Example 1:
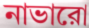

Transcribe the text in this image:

নাভারো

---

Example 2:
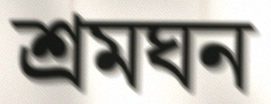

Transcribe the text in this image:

শ্রমঘন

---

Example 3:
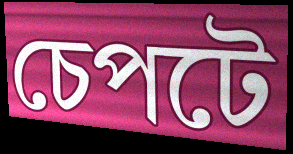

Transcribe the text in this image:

চেপটে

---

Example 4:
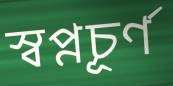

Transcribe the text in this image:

স্বপ্নচূর্ণ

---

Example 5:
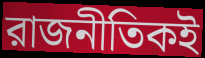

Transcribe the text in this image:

রাজনীতিকই